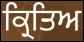
ਕ੍ਰਿਤਿਅ